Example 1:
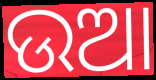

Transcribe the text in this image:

ଉଆ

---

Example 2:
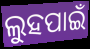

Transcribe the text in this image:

ଲୁହପାଇଁ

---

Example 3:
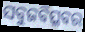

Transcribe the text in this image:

ସବୁଜବିପ୍ଳବର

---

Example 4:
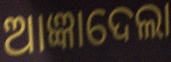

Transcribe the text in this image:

ଆଜ୍ଞାଦେଲା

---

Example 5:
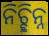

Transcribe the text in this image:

ନିଚ୍ଛିନ୍ନ